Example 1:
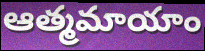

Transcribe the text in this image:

ఆత్మమాయాం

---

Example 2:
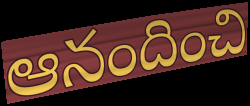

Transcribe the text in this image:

ఆనందించి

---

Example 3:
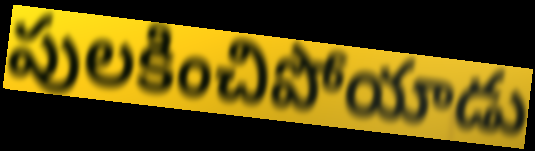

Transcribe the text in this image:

పులకించిపోయాడు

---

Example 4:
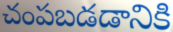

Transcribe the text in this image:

చంపబడడానికి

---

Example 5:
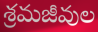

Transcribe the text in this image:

శ్రమజీవుల